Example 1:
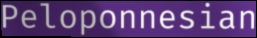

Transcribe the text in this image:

Peloponnesian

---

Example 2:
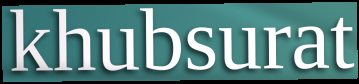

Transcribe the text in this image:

khubsurat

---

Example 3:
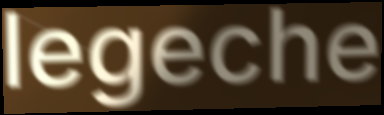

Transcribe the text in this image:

legeche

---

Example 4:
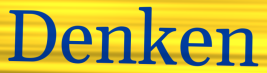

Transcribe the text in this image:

Denken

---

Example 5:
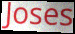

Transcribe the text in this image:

Joses